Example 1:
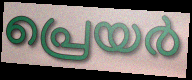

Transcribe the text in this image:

പ്രെയർ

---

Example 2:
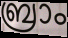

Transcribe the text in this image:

ബ്രാം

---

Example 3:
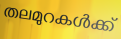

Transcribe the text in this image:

തലമുറകൾക്ക്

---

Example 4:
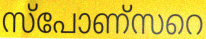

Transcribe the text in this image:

സ്പോണ്സറെ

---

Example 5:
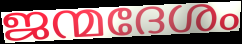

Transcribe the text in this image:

ജന്മദേശം